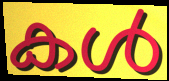
കൾ